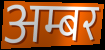
अम्‍बर